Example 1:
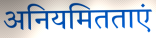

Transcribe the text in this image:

अनियमितताएं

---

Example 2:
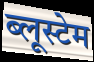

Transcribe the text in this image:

ब्लूस्टेम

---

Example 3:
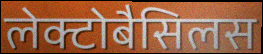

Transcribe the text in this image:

लेक्टोबैसिलस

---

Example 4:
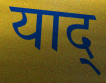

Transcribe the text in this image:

याद्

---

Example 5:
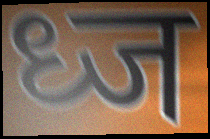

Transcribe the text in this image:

ध्ज